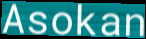
Asokan